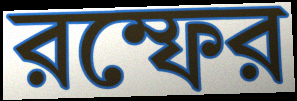
রম্ফের